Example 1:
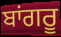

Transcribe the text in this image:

ਬਾਂਗਰੂ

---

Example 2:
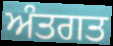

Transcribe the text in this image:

ਅੰਤਗਤ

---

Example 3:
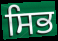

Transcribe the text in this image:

ਸਿਭ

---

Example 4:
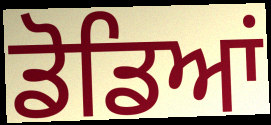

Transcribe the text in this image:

ਡੋਡਿਆਂ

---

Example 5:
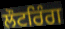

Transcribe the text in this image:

ਲੌਟਰਿੰਗ